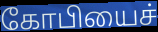
கோபியைச்